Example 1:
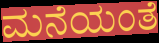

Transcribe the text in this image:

ಮನೆಯಂತೆ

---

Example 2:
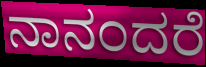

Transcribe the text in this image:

ನಾನಂದರೆ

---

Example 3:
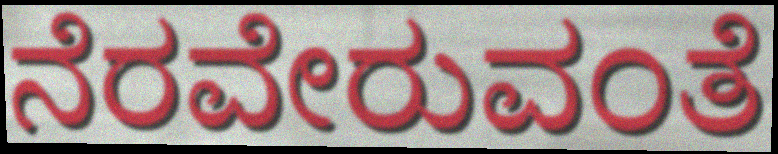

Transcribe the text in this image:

ನೆರವೇರುವಂತೆ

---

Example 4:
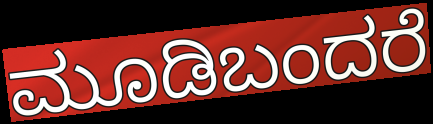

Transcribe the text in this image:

ಮೂಡಿಬಂದರೆ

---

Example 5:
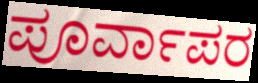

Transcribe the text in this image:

ಪೂರ್ವಾಪರ